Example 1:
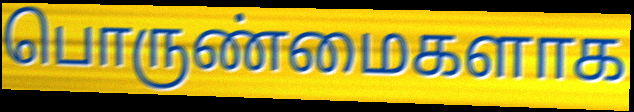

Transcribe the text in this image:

பொருண்மைகளாக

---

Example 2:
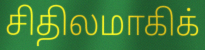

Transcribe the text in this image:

சிதிலமாகிக்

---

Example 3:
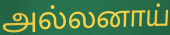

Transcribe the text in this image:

அல்லனாய்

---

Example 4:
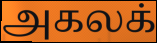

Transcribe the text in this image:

அகலக்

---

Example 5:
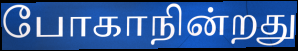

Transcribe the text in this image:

போகாநின்றது